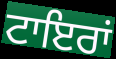
ਟਾਇਰਾਂ